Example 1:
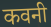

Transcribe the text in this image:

कवनी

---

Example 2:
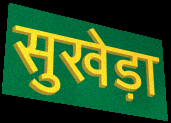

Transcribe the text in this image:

सुखेड़ा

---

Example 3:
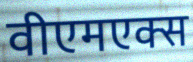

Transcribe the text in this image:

वीएमएक्स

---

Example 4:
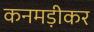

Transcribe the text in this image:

कनमड़ीकर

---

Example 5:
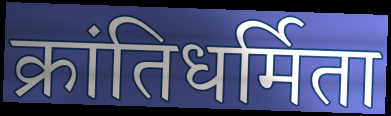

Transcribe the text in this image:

क्रांतिधर्मिता